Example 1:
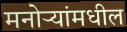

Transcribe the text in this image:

मनोऱ्यांमधील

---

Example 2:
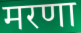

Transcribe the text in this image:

मरणा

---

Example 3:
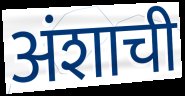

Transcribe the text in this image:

अंशाची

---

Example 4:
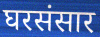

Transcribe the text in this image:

घरसंसार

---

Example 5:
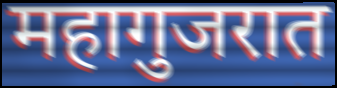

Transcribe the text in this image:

महागुजरात